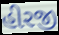
હીરજી